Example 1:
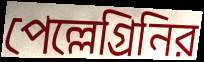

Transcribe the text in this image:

পেল্লেগ্রিনির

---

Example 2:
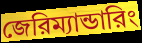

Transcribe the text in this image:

জেরিম্যান্ডারিং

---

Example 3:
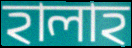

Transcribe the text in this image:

হালাহ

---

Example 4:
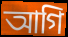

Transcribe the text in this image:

আগি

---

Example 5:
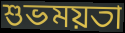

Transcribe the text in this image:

শুভময়তা